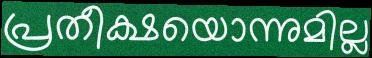
പ്രതീക്ഷയൊന്നുമില്ല